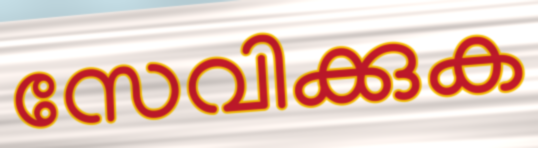
സേവിക്കുക